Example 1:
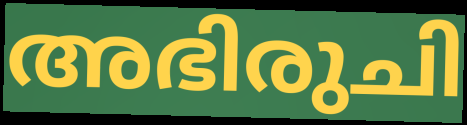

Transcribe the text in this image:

അഭിരുചി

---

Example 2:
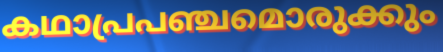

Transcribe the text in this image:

കഥാപ്രപഞ്ചമൊരുക്കും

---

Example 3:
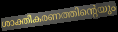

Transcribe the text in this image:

ശാക്തീകരണത്തിന്റെയും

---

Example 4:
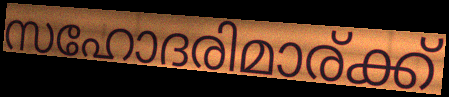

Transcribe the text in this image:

സഹോദരിമാര്ക്ക്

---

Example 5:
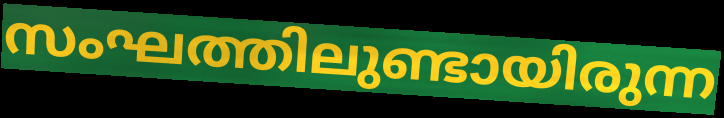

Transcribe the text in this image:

സംഘത്തിലുണ്ടായിരുന്ന